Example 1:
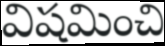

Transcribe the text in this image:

విషమించి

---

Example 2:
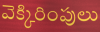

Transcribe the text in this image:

వెక్కిరింపులు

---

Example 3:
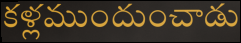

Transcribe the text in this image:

కళ్లముందుంచాడు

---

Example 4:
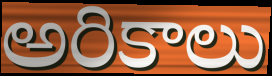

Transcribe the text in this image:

అరికాలు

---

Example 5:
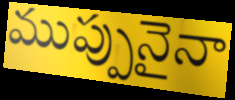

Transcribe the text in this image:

ముప్పునైనా